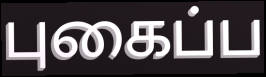
புகைப்ப